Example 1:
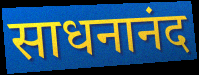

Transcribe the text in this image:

साधनानंद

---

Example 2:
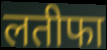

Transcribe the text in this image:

लतीफा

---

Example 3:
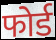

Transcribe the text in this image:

फोर्ड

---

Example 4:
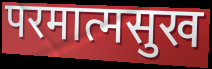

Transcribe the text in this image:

परमात्मसुख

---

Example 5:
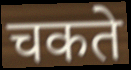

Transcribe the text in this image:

चकते